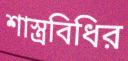
শাস্ত্রবিধির